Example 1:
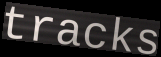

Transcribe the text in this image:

tracks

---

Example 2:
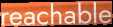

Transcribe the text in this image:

reachable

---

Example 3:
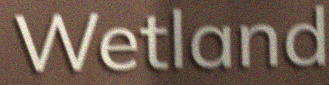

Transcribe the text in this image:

Wetland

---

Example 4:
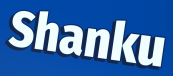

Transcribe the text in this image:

Shanku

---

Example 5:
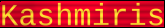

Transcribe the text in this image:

Kashmiris